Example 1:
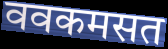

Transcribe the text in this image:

ववकमसत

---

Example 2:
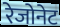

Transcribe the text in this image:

रेजोनेट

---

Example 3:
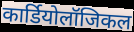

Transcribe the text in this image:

कार्डियोलॉजिकल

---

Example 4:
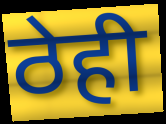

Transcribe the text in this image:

ठेही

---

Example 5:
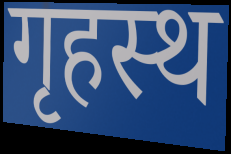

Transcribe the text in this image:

गृहस्थ